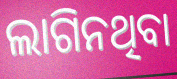
ଲାଗିନଥିବା